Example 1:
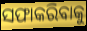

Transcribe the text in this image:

ସଫାକରିବାକୁ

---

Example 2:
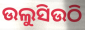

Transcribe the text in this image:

ଉଲୁସିଉଠି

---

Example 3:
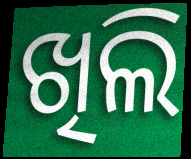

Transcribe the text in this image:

ଖିଲି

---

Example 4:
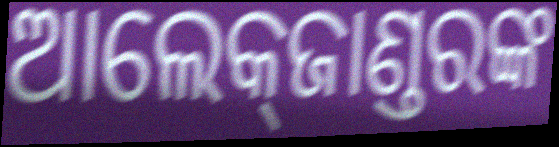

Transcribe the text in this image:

ଆଲେକ୍‌ଜାଣ୍ଡରଙ୍କ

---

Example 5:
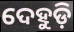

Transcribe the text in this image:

ଦେହୁଡ଼ି